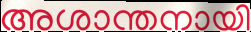
അശാന്തനായി